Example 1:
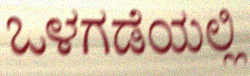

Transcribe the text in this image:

ಒಳಗಡೆಯಲ್ಲಿ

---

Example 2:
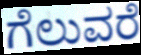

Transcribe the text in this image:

ಗೆಲುವರೆ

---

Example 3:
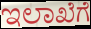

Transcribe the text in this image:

ಇಲಾಖೆಗೆ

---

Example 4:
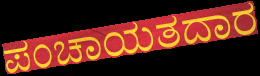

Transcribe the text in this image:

ಪಂಚಾಯತದಾರ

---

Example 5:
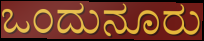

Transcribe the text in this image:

ಒಂದುನೂರು